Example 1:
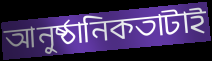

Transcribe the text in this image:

আনুষ্ঠানিকতাটাই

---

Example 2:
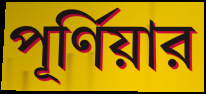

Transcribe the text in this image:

পূর্ণিয়ার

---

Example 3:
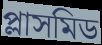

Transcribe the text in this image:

প্লাসমিড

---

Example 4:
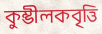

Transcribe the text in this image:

কুম্ভীলকবৃত্তি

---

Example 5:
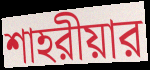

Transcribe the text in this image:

শাহরীয়ার